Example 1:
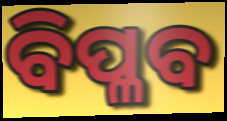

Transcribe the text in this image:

ବିପ୍ଳବ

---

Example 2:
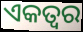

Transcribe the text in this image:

ଏକତ୍ବର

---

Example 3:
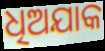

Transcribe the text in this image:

ଧିଅଯାକ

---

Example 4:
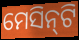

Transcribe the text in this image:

ମେସିନ୍‌ଟି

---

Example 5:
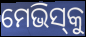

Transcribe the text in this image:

ମେଭିସ୍‌କୁ